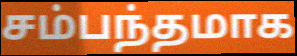
சம்பந்தமாக